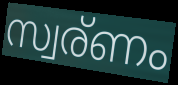
സ്വര്ണം